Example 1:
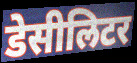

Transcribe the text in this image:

डेसीलिटर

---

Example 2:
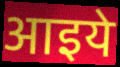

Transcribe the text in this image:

आइये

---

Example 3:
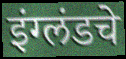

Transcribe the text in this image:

इंग्लंडचे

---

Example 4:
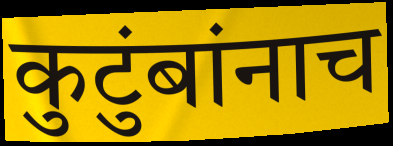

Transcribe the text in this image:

कुटुंबांनाच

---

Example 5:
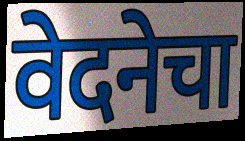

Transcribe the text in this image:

वेदनेचा